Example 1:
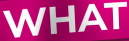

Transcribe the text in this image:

WHAT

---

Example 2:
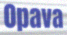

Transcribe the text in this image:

Opava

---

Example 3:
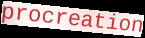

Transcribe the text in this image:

procreation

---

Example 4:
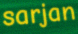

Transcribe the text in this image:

sarjan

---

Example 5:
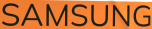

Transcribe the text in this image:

SAMSUNG